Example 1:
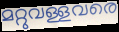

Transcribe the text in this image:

മറ്റുവള്ളവരെ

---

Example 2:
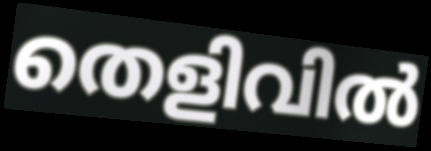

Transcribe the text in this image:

തെളിവിൽ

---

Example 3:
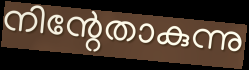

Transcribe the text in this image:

നിന്റേതാകുന്നു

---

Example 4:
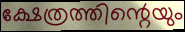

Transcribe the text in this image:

ക്ഷേത്രത്തിന്റെയും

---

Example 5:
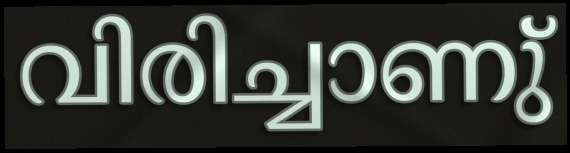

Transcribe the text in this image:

വിരിച്ചാണു്